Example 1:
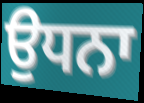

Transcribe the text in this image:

ਉਧਨਾ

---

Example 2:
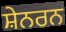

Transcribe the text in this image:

ਸ਼ੇਨਰਨ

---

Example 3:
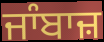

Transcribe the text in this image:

ਜਾੰਬਾਜ਼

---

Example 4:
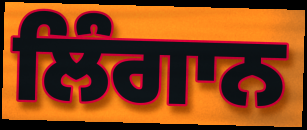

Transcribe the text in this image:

ਲਿੰਗਾਨ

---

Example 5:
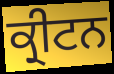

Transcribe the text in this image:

ਕ੍ਰੀਟਨ